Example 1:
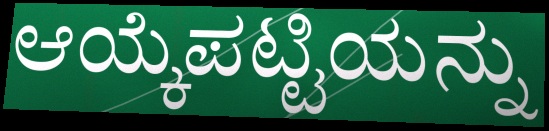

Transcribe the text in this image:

ಆಯ್ಕೆಪಟ್ಟಿಯನ್ನು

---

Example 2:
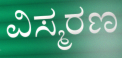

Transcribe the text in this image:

ವಿಸ್ಮರಣ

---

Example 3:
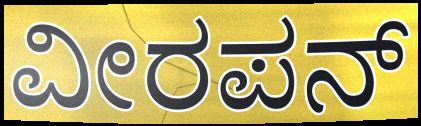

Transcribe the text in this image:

ವೀರಪನ್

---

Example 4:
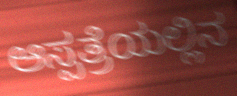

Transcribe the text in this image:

ಆಸ್ಪತ್ರೆಯಲ್ಲಿನ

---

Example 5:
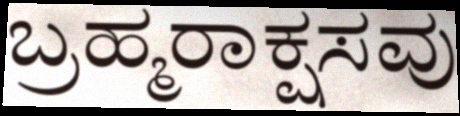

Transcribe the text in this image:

ಬ್ರಹ್ಮರಾಕ್ಷಸವು